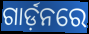
ଗାର୍ଡ଼ନରେ